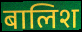
बालिश